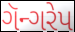
ગૅન્ગરેપ